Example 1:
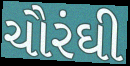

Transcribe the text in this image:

ચૌરંઘી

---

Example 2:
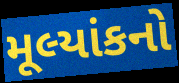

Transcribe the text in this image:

મૂલ્યાંકનો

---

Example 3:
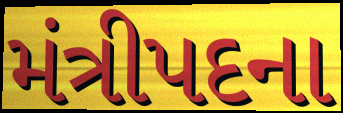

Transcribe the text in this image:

મંત્રીપદના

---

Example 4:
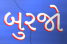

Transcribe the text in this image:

બુરજો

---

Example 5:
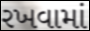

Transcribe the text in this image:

રખવામાં